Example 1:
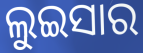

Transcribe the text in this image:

ଲୁଇସାର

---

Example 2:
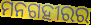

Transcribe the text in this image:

ମନଗହୀରର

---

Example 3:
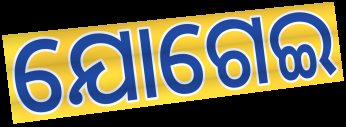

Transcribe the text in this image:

ଯୋଗେଇ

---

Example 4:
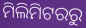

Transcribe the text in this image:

ମିଲିମିଟରରୁ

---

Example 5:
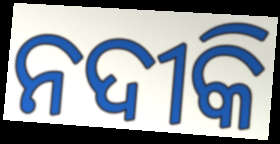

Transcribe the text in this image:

ନଦୀକି